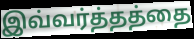
இவ்வர்த்தத்தை